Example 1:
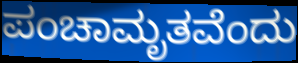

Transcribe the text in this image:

ಪಂಚಾಮೃತವೆಂದು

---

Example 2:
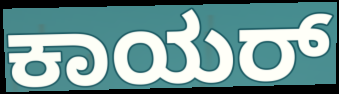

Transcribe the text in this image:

ಕಾಯರ್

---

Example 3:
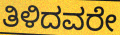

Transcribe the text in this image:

ತಿಳಿದವರೇ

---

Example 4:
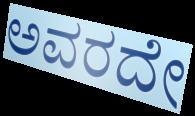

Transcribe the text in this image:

ಅವರದೇ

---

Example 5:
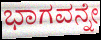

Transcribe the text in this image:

ಭಾಗವನ್ನೇ